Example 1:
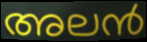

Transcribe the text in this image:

അലൻ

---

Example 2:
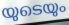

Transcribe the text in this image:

യുടെയും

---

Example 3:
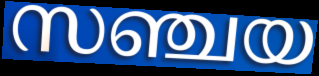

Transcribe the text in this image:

സഞ്ചയ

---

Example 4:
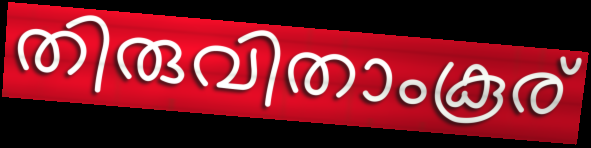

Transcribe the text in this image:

തിരുവിതാംകൂര്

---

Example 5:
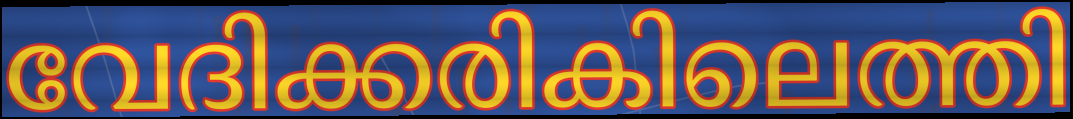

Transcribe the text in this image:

വേദിക്കരികിലെത്തി